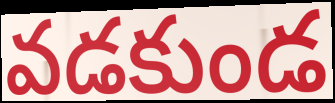
వడకుండ